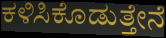
ಕಳಿಸಿಕೊಡುತ್ತೇನೆ